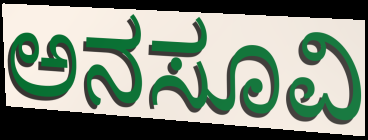
ಅನಸೂವಿ